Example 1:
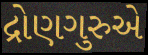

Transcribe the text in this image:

દ્રોણગુરુએ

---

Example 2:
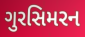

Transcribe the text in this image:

ગુરસિમરન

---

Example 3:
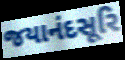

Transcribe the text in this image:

જયાનંદસૂરિ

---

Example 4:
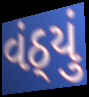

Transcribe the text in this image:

વંઠ્યું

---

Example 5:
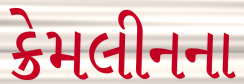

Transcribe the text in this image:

ક્રેમલીનના